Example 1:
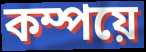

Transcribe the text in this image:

কম্পয়ে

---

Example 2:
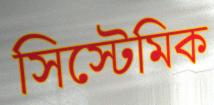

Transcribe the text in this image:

সিস্টেমিক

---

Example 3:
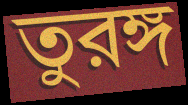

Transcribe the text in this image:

তুরঙ্গ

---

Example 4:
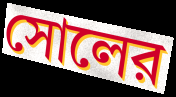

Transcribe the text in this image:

সোলের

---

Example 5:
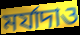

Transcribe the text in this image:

মর্যাদাও